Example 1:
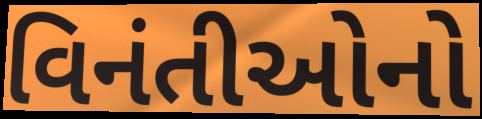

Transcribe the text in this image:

વિનંતીઓનો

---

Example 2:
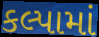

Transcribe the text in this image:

કલ્પામાં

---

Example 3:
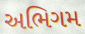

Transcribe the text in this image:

અભિગમ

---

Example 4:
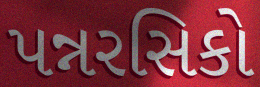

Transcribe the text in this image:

પન્નરસિકો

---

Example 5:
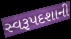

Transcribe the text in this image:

સ્વરૂપદશાની